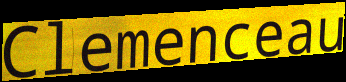
Clemenceau